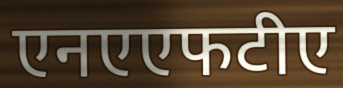
एनएएफटीए